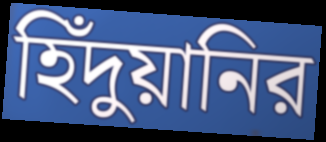
হিঁদুয়ানির